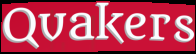
Quakers